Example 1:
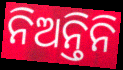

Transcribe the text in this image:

ନିଅନ୍ତିନି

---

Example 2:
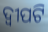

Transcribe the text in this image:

ଦ୍ୱୀପଟି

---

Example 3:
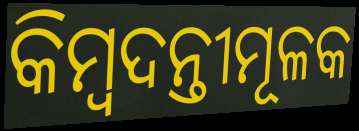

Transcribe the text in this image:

କିମ୍ବଦନ୍ତୀମୂଳକ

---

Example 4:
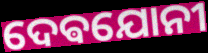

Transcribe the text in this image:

ଦେଵଯୋନୀ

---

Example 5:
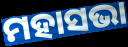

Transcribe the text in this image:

ମହାସଭା